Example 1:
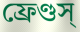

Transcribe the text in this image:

ফ্রেণ্ডস্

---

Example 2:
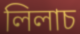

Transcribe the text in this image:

লিলাচ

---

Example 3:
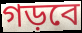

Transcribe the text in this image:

গড়বে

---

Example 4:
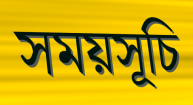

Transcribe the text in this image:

সময়সূচি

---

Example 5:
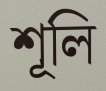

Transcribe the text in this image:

শূলি